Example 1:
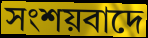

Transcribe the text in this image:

সংশয়বাদে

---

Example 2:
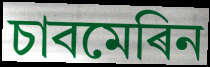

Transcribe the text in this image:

চাবমেৰিন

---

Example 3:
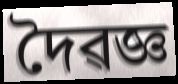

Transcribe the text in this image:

দৈৱজ্ঞ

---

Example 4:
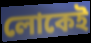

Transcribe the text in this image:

লোকেই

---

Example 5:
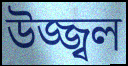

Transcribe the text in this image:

উজ্জ্বল